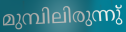
മുമ്പിലിരുന്നു്